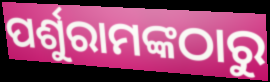
ପର୍ଶୁରାମଙ୍କଠାରୁ